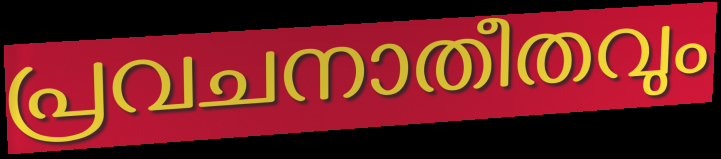
പ്രവചനാതീതവും